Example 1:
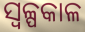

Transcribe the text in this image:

ସ୍ୱଳ୍ପକାଳ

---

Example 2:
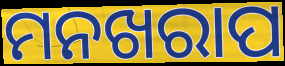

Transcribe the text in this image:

ମନଖରାପ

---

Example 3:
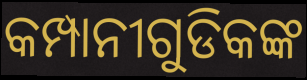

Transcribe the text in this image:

କମ୍ପାନୀଗୁଡିକଙ୍କ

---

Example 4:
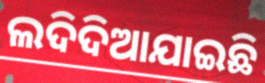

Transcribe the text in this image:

ଲଦିଦିଆଯାଇଛି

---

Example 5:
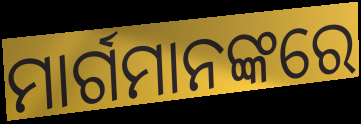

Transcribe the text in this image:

ମାର୍ଗମାନଙ୍କରେ